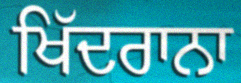
ਖਿੱਦਰਾਨਾ